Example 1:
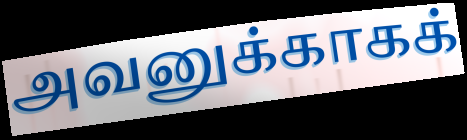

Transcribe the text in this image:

அவனுக்காகக்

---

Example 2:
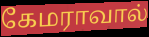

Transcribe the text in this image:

கேமராவால்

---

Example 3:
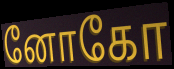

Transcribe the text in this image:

னோகோ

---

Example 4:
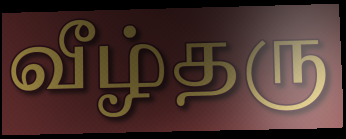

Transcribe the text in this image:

வீழ்தரு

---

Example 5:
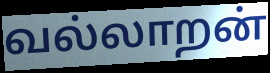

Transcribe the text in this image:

வல்லாறன்